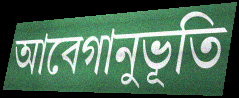
আবেগানুভূতি